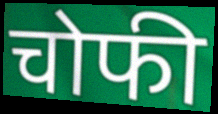
चोफी